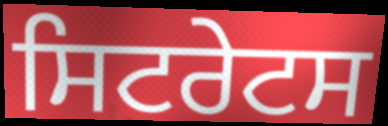
ਸਿਟਰੇਟਸ